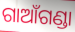
ଗାଆଁଗଣ୍ଡା